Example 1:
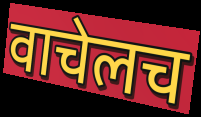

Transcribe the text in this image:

वाचेलच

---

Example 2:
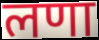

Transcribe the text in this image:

लणा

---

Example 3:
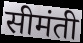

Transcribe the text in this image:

सीमंती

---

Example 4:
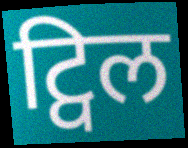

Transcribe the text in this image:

ट्विल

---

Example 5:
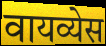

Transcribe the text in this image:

वायव्येस